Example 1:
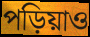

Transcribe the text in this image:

পড়িয়াও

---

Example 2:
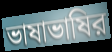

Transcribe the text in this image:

ভাষাভাষির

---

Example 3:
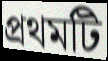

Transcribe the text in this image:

প্রথমটি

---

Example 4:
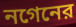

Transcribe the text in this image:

নগেনের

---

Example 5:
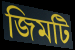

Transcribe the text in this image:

জিমটি